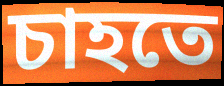
চাহতে